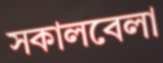
সকালবেলা